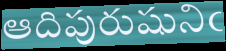
ఆదిపురుషునిఁ